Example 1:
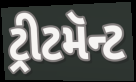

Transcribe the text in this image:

ટ્રીટમૅન્ટ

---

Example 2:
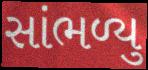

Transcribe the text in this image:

સાંભળ્યુ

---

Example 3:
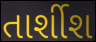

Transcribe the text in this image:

તાર્શીશ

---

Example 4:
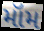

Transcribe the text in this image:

મૉમ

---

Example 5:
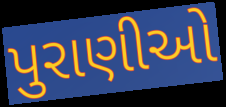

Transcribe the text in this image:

પુરાણીઓ